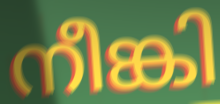
നീങ്കി